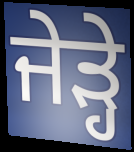
ਜੇੜ੍ਹੇ